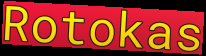
Rotokas